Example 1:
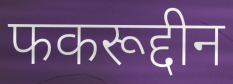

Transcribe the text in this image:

फकरूद्दीन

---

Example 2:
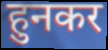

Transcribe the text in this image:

हुनकर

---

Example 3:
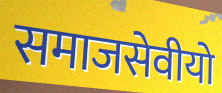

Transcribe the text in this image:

समाजसेवीयो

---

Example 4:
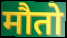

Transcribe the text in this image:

मौतो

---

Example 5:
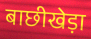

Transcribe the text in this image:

बाछीखेड़ा